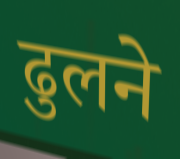
ढुलने